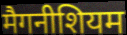
मैगनीशियम